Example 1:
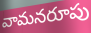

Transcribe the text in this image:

వామనరూపు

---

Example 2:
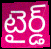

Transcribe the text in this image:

టైర్డ్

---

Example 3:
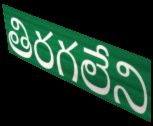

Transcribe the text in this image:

తిరగలేని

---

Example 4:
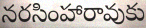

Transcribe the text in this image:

నరసింహారావుకు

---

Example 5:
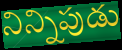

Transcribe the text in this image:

నిన్నిపుడు